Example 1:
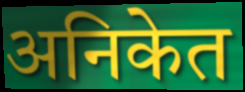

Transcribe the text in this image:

अनिकेत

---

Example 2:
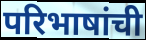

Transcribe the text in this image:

परिभाषांची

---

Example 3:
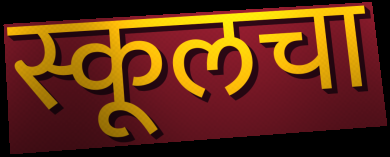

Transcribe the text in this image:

स्कूलचा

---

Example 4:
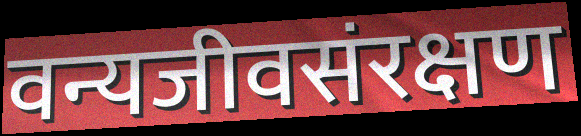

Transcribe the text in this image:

वन्यजीवसंरक्षण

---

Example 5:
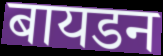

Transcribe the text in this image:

बायडन